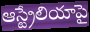
ఆస్ట్రేలియాపై